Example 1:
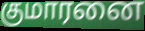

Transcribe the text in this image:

குமாரனை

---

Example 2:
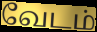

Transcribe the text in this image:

வேடம்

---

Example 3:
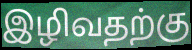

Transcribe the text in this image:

இழிவதற்கு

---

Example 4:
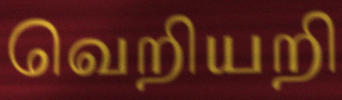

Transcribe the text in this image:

வெறியறி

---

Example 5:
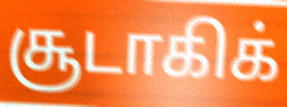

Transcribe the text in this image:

சூடாகிக்